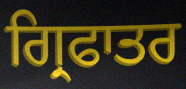
ਗ੍ਰਿਫਾਤਰ